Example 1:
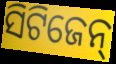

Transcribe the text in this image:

ସିଟିଜେନ୍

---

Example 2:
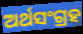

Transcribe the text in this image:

ଅର୍ଥସଂଗ୍ରହ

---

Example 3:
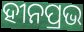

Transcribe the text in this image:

ହୀନପ୍ରଭ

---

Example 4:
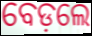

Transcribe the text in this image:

ବେଡ଼ଲେ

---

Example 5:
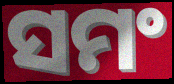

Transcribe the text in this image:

ସମଂ